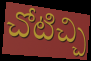
చోటిచ్చి